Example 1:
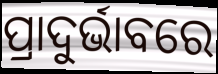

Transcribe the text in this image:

ପ୍ରାଦୁର୍ଭାବରେ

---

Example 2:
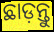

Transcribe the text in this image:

ଛାଡ଼ନ୍ତୁ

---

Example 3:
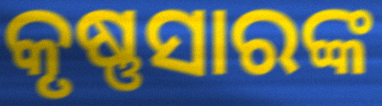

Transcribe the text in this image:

କୃଷ୍ଣସାରଙ୍କ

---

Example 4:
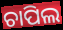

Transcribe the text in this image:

ଚାପିଲ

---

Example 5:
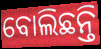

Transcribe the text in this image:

ବୋଲିଛନ୍ତି